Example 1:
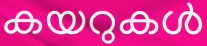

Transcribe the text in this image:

കയറുകൾ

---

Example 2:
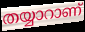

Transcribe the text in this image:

തയ്യാറാണ്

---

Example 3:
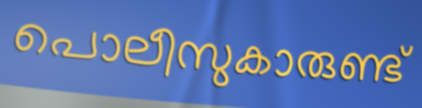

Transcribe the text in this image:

പൊലീസുകാരുണ്ട്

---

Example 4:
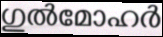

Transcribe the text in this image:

ഗുൽമോഹർ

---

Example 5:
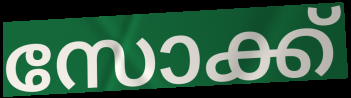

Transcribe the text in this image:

സോക്ക്